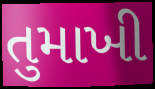
તુમાખી